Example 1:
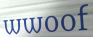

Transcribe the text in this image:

wwoof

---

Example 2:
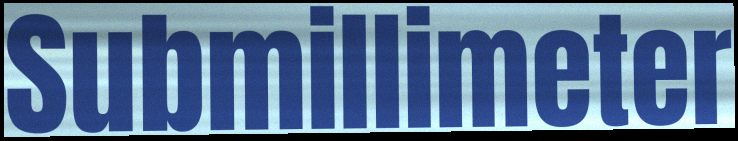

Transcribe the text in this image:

Submillimeter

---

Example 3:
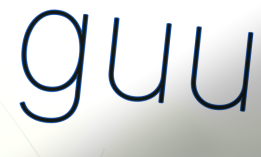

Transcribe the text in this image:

guu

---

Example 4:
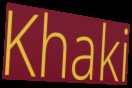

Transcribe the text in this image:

Khaki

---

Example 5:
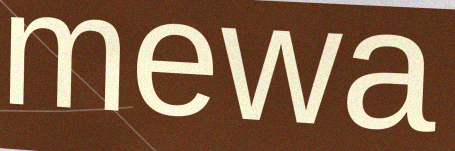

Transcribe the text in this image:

mewa